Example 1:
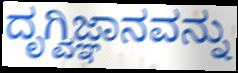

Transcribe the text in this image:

ದೃಗ್ವಿಜ್ಞಾನವನ್ನು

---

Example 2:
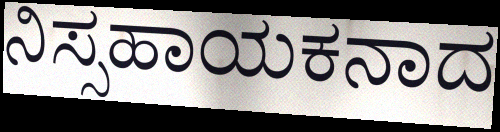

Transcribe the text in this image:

ನಿಸ್ಸಹಾಯಕನಾದ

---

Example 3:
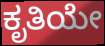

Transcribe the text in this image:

ಕೃತಿಯೇ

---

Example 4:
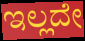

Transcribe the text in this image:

ಇಲ್ಲದೇ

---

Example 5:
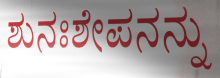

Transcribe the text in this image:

ಶುನಃಶೇಪನನ್ನು